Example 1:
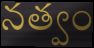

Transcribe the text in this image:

నత్వం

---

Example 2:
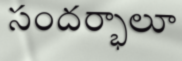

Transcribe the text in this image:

సందర్భాలూ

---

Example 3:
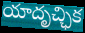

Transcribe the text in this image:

యాదృచ్ఛిక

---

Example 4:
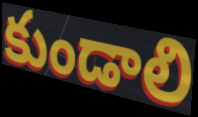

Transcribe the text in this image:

కుండాలి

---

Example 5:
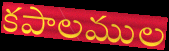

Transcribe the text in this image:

కపాలముల